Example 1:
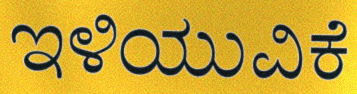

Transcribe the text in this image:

ಇಳಿಯುವಿಕೆ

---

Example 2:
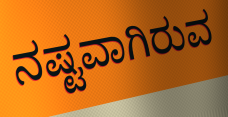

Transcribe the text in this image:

ನಷ್ಟವಾಗಿರುವ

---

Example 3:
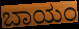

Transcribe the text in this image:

ಬಾಯಂ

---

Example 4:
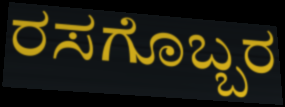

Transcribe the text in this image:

ರಸಗೊಬ್ಬರ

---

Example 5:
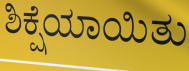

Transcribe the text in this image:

ಶಿಕ್ಷೆಯಾಯಿತು